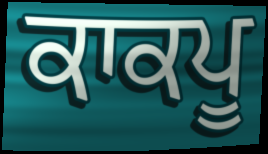
ਕਾਕਪੂ